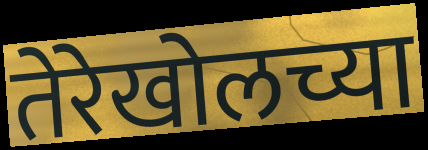
तेरेखोलच्या